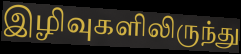
இழிவுகளிலிருந்து